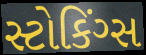
સ્ટોકિંગ્સ